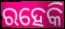
ରହେକି